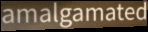
amalgamated